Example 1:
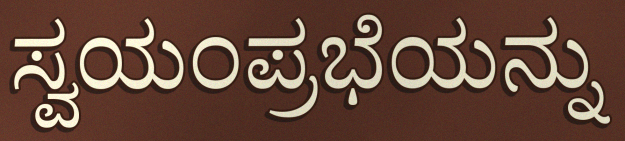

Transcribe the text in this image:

ಸ್ವಯಂಪ್ರಭೆಯನ್ನು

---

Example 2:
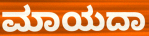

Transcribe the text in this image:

ಮಾಯದಾ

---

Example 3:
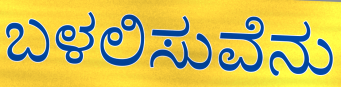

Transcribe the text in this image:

ಬಳಲಿಸುವೆನು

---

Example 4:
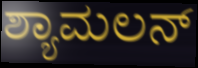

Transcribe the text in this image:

ಶ್ಯಾಮಲನ್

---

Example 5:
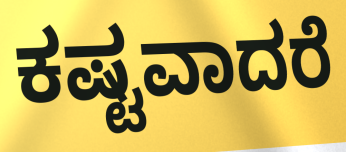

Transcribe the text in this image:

ಕಷ್ಟವಾದರೆ